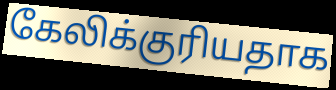
கேலிக்குரியதாக